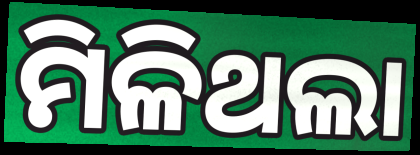
ମିଳିଥଲା